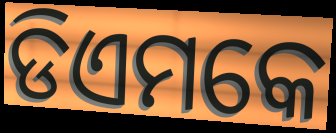
ଡିଏମକେ